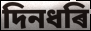
দিনধৰি